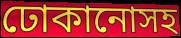
ঢোকানোসহ